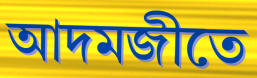
আদমজীতে